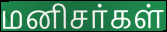
மனிசர்கள்